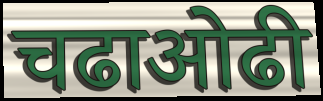
चढाओढी